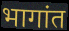
भागांत